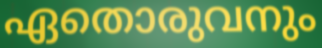
ഏതൊരുവനും